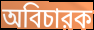
অবিচারক